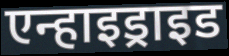
एन्हाइड्राइड